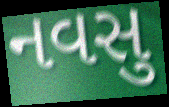
નવસુ